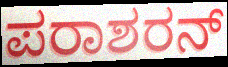
ಪರಾಶರನ್